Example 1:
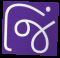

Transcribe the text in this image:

જિં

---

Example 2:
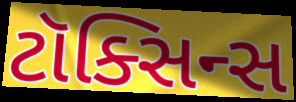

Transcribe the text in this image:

ટૉક્સિન્સ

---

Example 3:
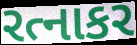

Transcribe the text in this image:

રત્નાકર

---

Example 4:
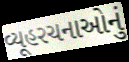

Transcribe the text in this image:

વ્યૂહરચનાઓનું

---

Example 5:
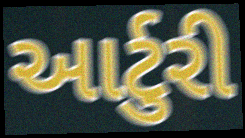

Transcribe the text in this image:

આર્ટુરી